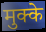
मुक्के